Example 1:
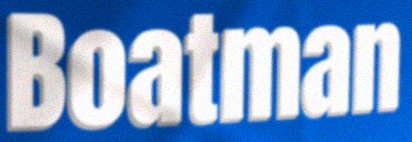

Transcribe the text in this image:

Boatman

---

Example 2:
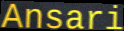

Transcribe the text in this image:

Ansari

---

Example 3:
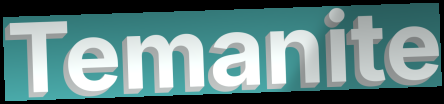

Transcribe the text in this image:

Temanite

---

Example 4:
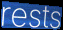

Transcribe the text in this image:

rests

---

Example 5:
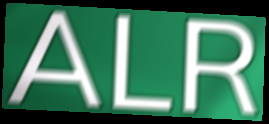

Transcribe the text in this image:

ALR